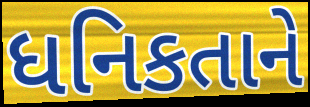
ધનિકતાને